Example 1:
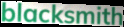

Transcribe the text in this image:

blacksmith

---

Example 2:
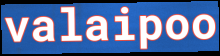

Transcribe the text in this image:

valaipoo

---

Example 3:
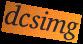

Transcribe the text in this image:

dcsimg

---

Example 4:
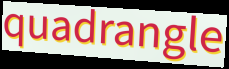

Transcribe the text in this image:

quadrangle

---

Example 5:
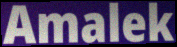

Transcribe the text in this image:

Amalek